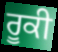
ਰੂਕੀ